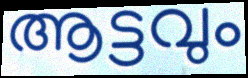
ആട്ടവും